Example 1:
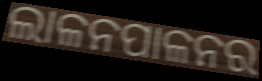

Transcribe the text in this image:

ଲାଳନପାଳନର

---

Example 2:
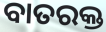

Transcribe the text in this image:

ବାତରକ୍ତ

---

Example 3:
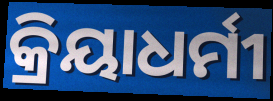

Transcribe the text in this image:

କ୍ରିୟାଧର୍ମୀ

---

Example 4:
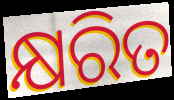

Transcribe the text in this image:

କ୍ଷରିତ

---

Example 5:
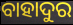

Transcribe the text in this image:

ବାହାଦୁର